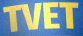
TVET